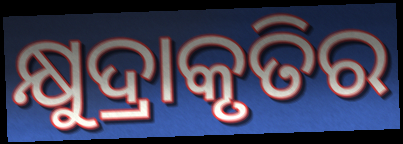
କ୍ଷୁଦ୍ରାକୃତିର